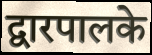
द्वारपालके